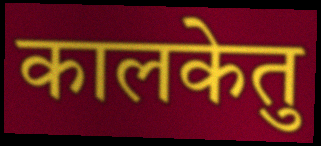
कालकेतु